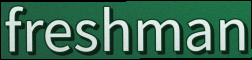
freshman